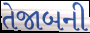
તેજાબની